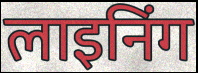
लाइनिंग